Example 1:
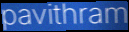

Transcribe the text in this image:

pavithram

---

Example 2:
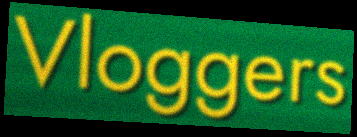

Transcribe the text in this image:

Vloggers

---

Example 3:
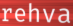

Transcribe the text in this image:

rehva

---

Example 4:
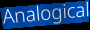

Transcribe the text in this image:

Analogical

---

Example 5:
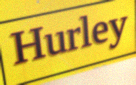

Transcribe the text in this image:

Hurley